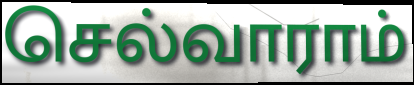
செல்வாராம்